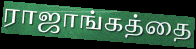
ராஜாங்கத்தை